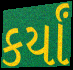
કર્યાં